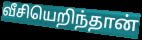
வீசியெறிந்தான்